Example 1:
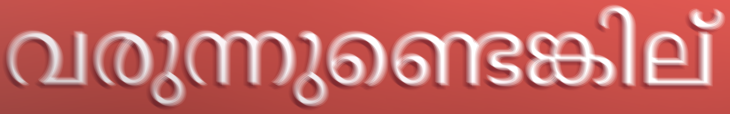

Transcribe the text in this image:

വരുന്നുണ്ടെങ്കില്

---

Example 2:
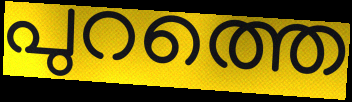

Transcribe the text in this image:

പുറത്തെ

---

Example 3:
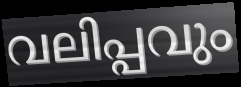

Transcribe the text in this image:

വലിപ്പവും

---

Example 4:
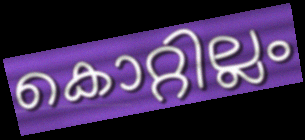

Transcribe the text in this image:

കൊറ്റില്ലം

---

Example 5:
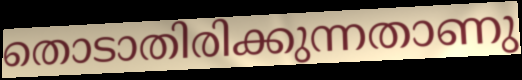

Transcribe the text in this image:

തൊടാതിരിക്കുന്നതാണു